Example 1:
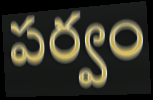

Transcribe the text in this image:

పర్వం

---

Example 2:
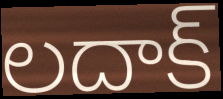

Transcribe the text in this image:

లదాక్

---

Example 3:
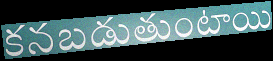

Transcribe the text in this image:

కనబడుతుంటాయి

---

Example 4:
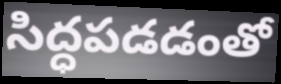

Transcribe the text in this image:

సిద్ధపడడంతో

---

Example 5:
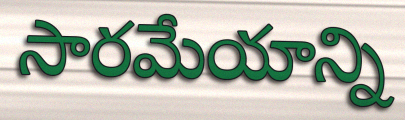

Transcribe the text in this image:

సారమేయాన్ని